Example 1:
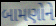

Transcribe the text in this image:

બામણોને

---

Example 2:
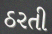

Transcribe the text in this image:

ઠરતી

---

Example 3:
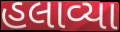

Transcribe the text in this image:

હલાવ્યા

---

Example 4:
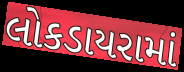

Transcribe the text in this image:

લોકડાયરામાં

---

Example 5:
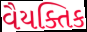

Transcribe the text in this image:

વૈયક્તિક